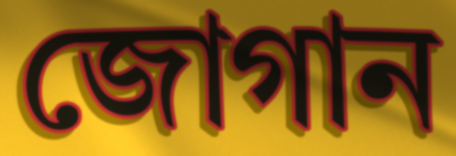
জোগান